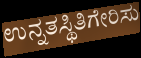
ಉನ್ನತಸ್ಥಿತಿಗೇರಿಸು